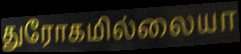
துரோகமில்லையா